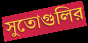
সুতোগুলির